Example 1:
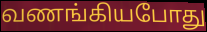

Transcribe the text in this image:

வணங்கியபோது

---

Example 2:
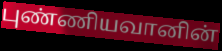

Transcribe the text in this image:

புண்ணியவானின்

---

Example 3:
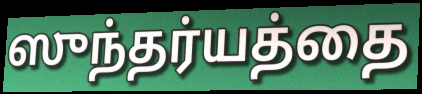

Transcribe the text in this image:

ஸுந்தர்யத்தை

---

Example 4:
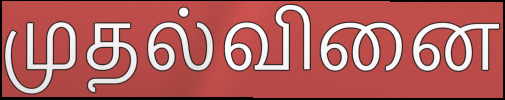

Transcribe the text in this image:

முதல்வினை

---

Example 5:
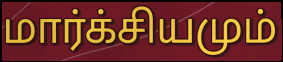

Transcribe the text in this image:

மார்க்சியமும்